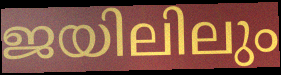
ജയിലിലും